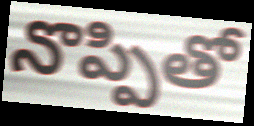
నొప్పితో